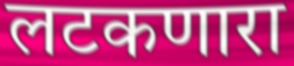
लटकणारा